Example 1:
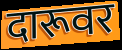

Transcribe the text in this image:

दारूवर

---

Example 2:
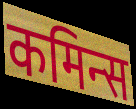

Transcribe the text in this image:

कमिन्स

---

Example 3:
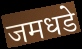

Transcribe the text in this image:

जमधडे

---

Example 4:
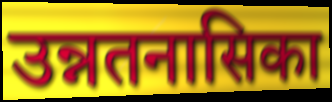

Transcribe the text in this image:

उन्नतनासिका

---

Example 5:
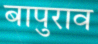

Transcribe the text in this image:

बापुराव